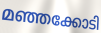
മഞ്ഞക്കോടി